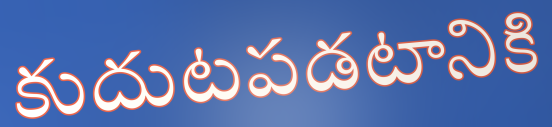
కుదుటపడటానికి